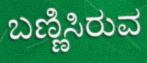
ಬಣ್ಣಿಸಿರುವ